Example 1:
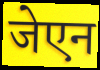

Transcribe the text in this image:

जेएन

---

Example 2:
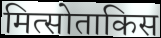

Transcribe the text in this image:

मित्सोताकिस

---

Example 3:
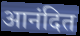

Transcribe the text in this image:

आनंदित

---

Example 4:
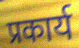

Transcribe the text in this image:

प्रकार्य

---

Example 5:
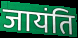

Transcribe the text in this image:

जायंति